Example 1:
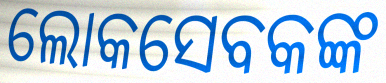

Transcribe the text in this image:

ଲୋକସେବକଙ୍କ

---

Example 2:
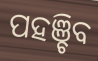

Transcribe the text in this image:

ପହଞ୍ଚିବ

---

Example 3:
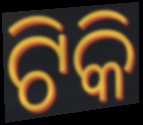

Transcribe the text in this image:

ଟିକି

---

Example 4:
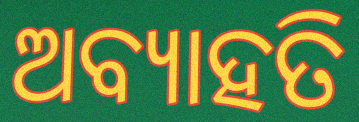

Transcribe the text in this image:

ଅବ୍ୟାହତି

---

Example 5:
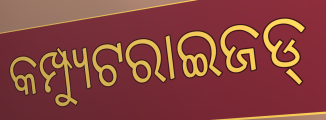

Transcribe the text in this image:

କମ୍ପ୍ୟୁଟରାଇଜଡ୍